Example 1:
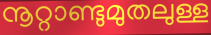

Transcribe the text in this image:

നൂറ്റാണ്ടുമുതലുള്ള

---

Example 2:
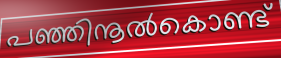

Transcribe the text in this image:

പഞ്ഞിനൂൽകൊണ്ട്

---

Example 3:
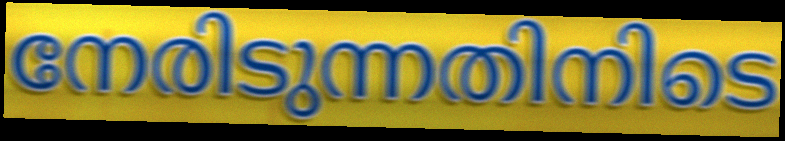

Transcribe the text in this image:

നേരിടുന്നതിനിടെ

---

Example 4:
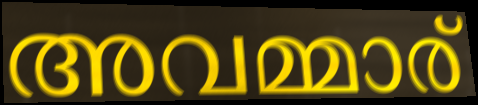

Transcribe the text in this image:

അവമ്മാര്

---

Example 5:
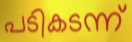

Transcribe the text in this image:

പടികടന്ന്